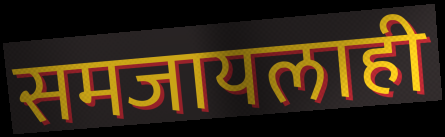
समजायलाही